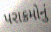
પરાક્રમોનું